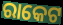
ରାକେଟ